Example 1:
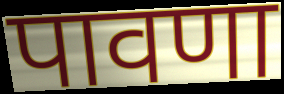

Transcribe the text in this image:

पावणा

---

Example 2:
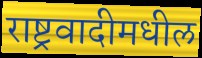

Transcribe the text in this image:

राष्ट्रवादीमधील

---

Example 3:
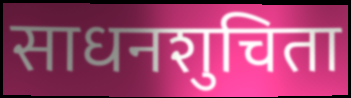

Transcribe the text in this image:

साधनशुचिता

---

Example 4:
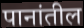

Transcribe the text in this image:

पानांतील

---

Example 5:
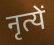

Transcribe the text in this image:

नृत्यें